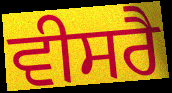
ਵੀਸਰੈ